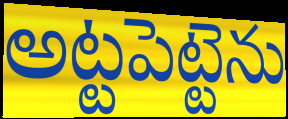
అట్టపెట్టెను